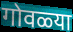
गोवळ्या